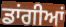
ਡਾਂਗੀਆਂ